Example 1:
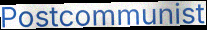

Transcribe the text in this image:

Postcommunist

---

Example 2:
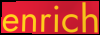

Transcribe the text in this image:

enrich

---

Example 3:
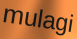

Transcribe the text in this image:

mulagi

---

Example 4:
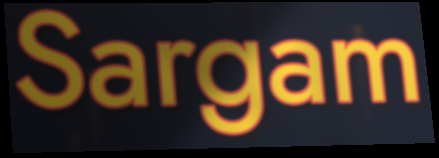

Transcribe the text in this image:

Sargam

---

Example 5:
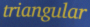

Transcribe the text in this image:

triangular